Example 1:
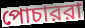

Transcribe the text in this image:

পোচাররা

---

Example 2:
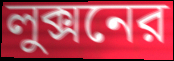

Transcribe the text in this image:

লুক্সনের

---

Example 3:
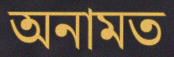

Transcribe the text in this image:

অনামত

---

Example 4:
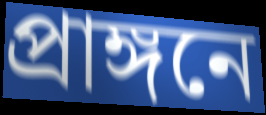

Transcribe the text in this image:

প্রাঙ্গনে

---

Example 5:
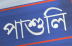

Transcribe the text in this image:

পাশুলি